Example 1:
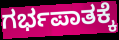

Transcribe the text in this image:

ಗರ್ಭಪಾತಕ್ಕೆ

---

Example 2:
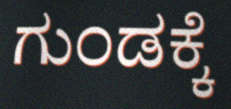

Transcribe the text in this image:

ಗುಂಡಕ್ಕೆ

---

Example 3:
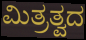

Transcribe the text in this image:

ಮಿತ್ರತ್ವದ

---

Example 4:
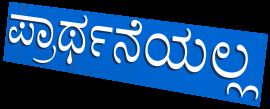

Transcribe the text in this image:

ಪ್ರಾರ್ಥನೆಯಲ್ಲ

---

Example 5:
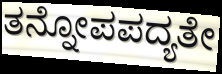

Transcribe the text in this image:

ತನ್ನೋಪಪದ್ಯತೇ